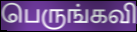
பெருங்கவி